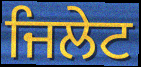
ਜਿਲੇਟ